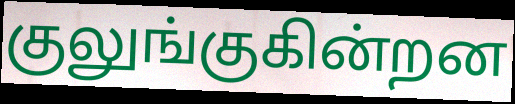
குலுங்குகின்றன